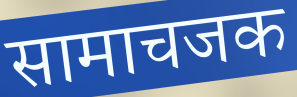
सामाचजक